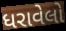
ધરાવેલો